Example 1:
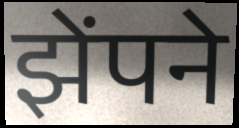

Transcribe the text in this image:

झेंपने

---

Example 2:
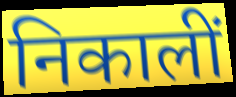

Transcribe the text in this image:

निकालीं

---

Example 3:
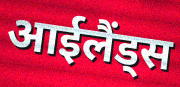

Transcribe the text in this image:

आईलैंड्स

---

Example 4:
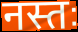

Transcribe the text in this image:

नस्तः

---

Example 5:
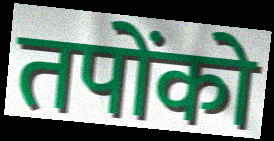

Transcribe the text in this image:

तपोंको